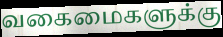
வகைமைகளுக்கு